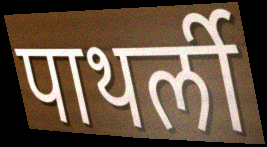
पाथर्ली